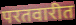
परतवारीत